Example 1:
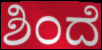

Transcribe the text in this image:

ಶಿಂದೆ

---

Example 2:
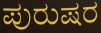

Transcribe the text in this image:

ಪುರುಷರ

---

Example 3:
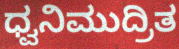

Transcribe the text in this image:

ಧ್ವನಿಮುದ್ರಿತ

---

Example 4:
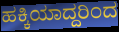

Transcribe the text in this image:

ಹಕ್ಕಿಯಾದ್ದರಿಂದ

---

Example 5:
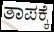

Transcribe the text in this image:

ತಾಪಕ್ಕೆ